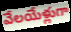
వేలయేళ్లుగా